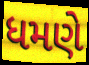
ધમણે